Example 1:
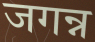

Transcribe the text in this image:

जगन्न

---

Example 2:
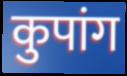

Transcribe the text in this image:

कुपांग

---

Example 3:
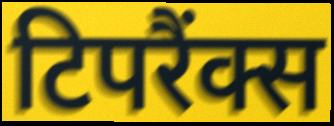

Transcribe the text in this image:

टिपरैंक्स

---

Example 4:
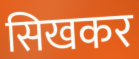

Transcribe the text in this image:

सिखकर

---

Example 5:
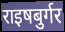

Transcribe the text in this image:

राइषबुर्गर